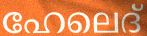
ഹേലെദ്